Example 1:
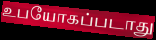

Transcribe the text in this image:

உபயோகப்படாது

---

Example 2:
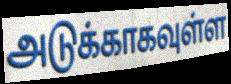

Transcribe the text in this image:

அடுக்காகவுள்ள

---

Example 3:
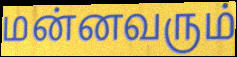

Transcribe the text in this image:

மன்னவரும்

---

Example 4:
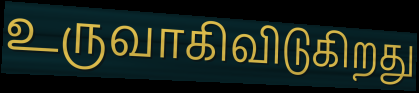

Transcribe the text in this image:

உருவாகிவிடுகிறது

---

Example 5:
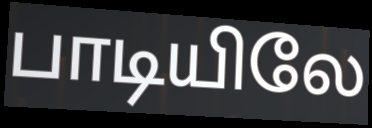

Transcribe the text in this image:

பாடியிலே